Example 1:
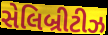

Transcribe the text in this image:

સેલિબ્રીટીઝ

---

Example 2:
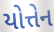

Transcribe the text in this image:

યોત્તેન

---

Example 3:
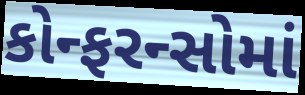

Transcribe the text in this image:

કોન્ફરન્સોમાં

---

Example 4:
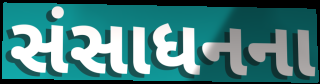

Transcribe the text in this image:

સંસાધનના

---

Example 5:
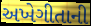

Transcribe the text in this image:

અખેગીતાની